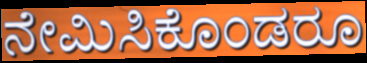
ನೇಮಿಸಿಕೊಂಡರೂ